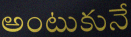
అంటుకునే